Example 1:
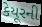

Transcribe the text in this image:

કેયૂરની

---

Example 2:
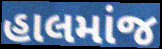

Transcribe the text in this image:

હાલમાંજ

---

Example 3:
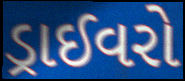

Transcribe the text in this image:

ડ્રાઈવરો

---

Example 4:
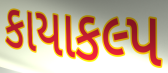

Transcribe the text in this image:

કાયાકલ્પ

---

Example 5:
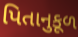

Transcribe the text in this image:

પિતાનુકૂળ